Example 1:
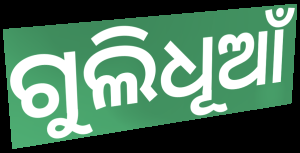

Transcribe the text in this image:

ଗୁଲିଧୂଆଁ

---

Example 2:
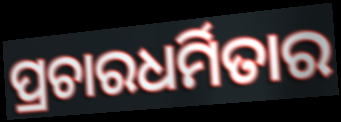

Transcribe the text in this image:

ପ୍ରଚାରଧର୍ମିତାର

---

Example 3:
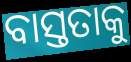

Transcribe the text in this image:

ବାସ୍ତତାକୁ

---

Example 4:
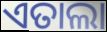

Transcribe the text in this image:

ଏତାଲା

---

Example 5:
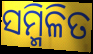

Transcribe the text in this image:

ସମ୍ମିଳିତ